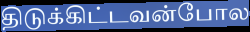
திடுக்கிட்டவன்போல